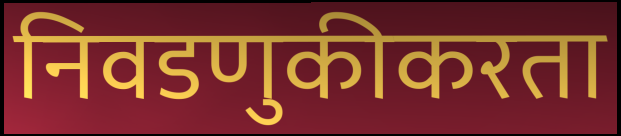
निवडणुकीकरता